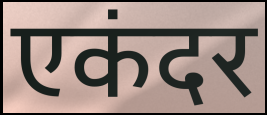
एकंदर